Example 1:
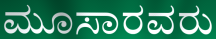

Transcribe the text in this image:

ಮೂಸಾರವರು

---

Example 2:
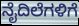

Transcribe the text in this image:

ನೈದಿಲೆಗಳಿಗೆ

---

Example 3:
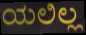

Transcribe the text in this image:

ಯಲಿಲ್ಲ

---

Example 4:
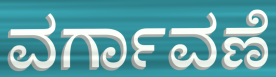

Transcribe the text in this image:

ವರ್ಗಾವಣೆ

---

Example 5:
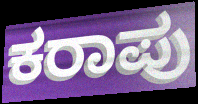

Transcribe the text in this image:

ಕರಾಪು